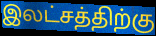
இலட்சத்திற்கு